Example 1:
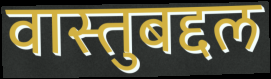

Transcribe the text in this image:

वास्तुबद्दल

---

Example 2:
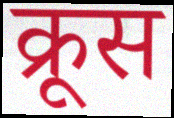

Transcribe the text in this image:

क्रूस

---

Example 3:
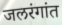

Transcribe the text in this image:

जलरंगांत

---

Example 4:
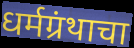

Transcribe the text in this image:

धर्मग्रंथाचा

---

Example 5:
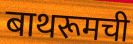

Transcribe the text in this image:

बाथरूमची